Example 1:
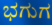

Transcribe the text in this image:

ಭಗುಗ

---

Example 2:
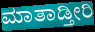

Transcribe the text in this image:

ಮಾತಾಡ್ತೀರಿ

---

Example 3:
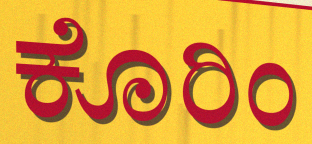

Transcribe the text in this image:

ಕೊರಿಂ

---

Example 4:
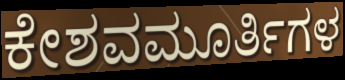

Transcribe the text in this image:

ಕೇಶವಮೂರ್ತಿಗಳ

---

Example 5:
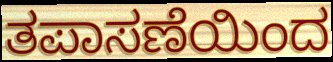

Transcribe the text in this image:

ತಪಾಸಣೆಯಿಂದ